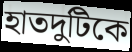
হাতদুটিকে